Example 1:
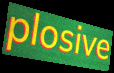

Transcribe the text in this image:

plosive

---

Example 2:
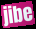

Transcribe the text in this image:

jibe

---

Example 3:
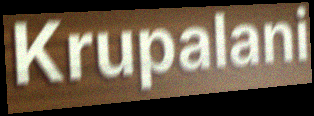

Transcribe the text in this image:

Krupalani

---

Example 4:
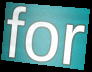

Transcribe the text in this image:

for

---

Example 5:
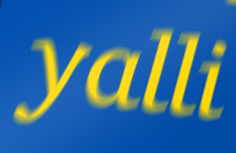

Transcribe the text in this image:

yalli